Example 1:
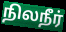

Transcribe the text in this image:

நிலநீர்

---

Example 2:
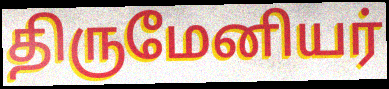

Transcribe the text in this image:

திருமேனியர்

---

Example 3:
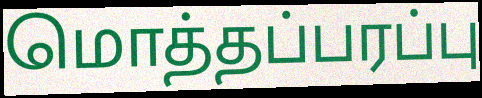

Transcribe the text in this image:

மொத்தப்பரப்பு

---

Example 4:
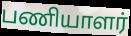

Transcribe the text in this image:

பணியாளர்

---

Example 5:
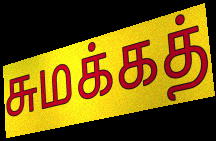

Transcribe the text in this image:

சுமக்கத்